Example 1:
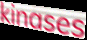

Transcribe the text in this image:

kinases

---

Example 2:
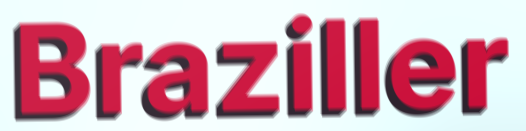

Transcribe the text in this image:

Braziller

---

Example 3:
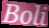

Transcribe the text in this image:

Boli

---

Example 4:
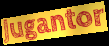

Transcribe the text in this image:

Jugantor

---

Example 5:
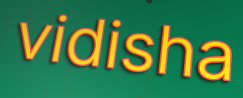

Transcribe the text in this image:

vidisha